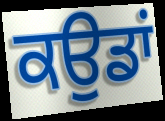
ਕਉਡਾਂ